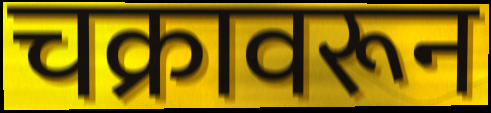
चक्रावरून